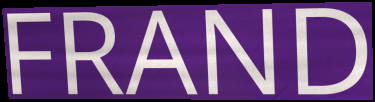
FRAND